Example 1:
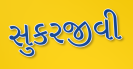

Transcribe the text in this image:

સુકરજીવી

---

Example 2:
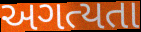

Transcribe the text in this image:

અગત્યતા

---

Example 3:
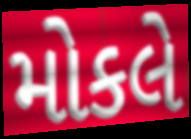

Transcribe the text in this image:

મોકલે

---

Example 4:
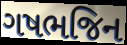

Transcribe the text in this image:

ગષભજિન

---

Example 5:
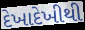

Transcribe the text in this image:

દેખાદેખીથી